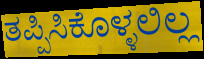
ತಪ್ಪಿಸಿಕೊಳ್ಳಲಿಲ್ಲ